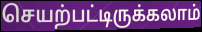
செயற்பட்டிருக்கலாம்